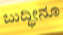
ಬುದ್ಧೀನೂ